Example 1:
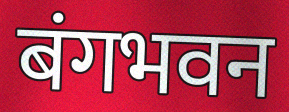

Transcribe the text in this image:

बंगभवन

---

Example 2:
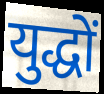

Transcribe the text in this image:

युद्धों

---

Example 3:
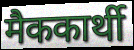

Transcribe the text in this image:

मैककार्थी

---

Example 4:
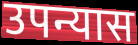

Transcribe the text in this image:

उपन्यास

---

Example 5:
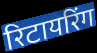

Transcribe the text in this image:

रिटायरिंग